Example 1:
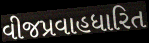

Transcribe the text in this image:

વીજપ્રવાહધારિત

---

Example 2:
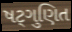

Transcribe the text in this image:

ષટ્ગુણિત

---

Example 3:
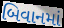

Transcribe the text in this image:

બિવાનમાં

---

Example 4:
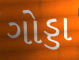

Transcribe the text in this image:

ગોડ્ડા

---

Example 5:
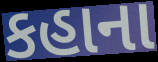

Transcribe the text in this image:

કહાના